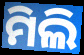
ମିଲି